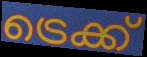
ട്രെക്ക്